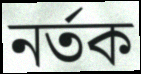
নৰ্তক